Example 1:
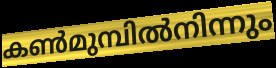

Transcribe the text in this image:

കൺമുമ്പിൽനിന്നും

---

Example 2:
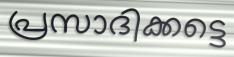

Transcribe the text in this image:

പ്രസാദിക്കട്ടെ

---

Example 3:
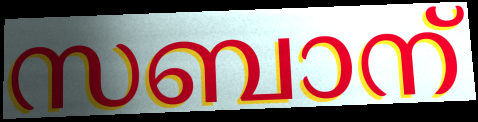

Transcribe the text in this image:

സബാന്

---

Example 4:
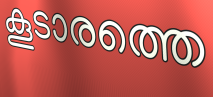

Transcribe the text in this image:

കൂടാരത്തെ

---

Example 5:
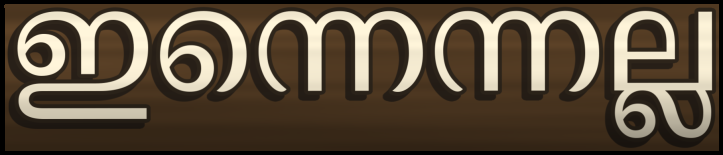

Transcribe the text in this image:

ഇന്നെന്നല്ല